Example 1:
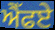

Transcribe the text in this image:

ਐੱਫਏ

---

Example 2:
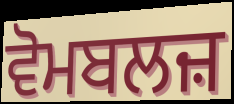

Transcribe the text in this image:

ਵੋਮਬਲਜ਼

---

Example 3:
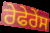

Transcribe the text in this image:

ਰੇਫੇਰੇਂਸ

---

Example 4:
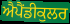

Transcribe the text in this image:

ਐਪੈਂਡੀਕੁਲਰ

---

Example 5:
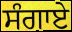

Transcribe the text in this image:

ਸੰਗਾਏ